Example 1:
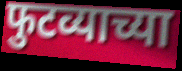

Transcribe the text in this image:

फुटव्याच्या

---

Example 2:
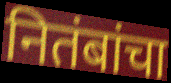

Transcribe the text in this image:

नितंबांचा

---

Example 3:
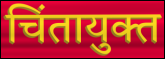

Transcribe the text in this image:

चिंतायुक्त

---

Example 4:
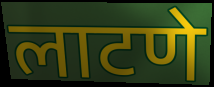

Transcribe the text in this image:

लाटणे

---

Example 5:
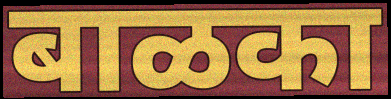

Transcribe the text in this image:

बाळका